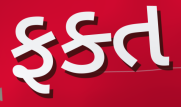
ફક્ત